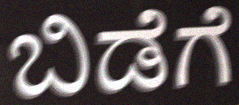
ಬಿಡೆಗೆ